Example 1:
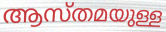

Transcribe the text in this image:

ആസ്തമയുള്ള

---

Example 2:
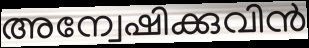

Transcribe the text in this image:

അന്വേഷിക്കുവിൻ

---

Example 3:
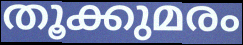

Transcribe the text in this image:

തൂക്കുമരം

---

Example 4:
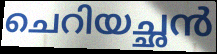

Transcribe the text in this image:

ചെറിയച്ഛൻ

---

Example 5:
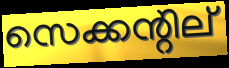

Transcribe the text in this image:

സെക്കന്റില്